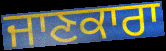
ਜਾਣਕਾਰਾ